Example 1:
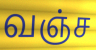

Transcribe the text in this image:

வஞ்ச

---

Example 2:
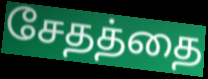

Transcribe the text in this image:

சேதத்தை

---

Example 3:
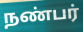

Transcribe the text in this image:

நண்பர்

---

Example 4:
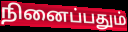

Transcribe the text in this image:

நினைப்பதும்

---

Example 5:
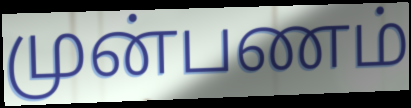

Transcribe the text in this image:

முன்பணம்